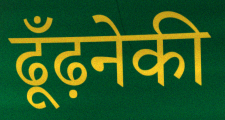
ढूँढ़नेकी